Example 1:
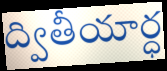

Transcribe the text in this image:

ద్వితీయార్ధ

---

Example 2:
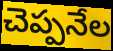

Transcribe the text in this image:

చెప్పనేల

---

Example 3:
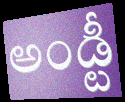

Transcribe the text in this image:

అండ్టీ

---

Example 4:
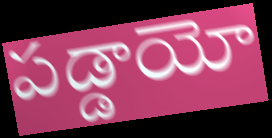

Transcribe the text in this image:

పడ్డాయో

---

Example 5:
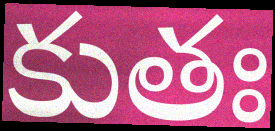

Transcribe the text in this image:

కుతః